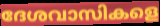
ദേശവാസികളെ